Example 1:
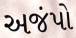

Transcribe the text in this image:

અજંપો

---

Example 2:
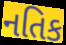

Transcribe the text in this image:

નતિક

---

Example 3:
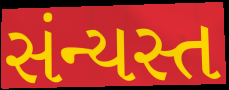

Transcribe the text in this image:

સંન્યસ્ત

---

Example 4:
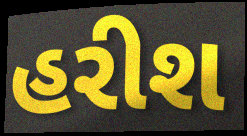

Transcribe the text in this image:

હરીશ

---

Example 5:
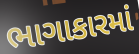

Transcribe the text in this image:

ભાગાકારમાં